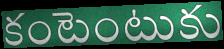
కంటెంటుకు